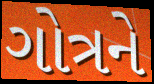
ગોત્રને